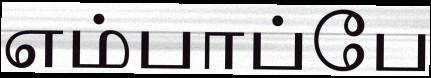
எம்பாப்பே